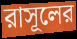
রাসূলের